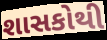
શાસકોથી